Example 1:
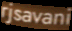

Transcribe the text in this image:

rjsavani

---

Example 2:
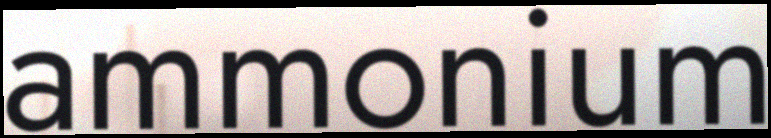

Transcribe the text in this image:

ammonium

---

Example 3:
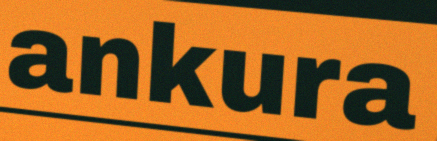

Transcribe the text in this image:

ankura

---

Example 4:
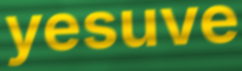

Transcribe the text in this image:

yesuve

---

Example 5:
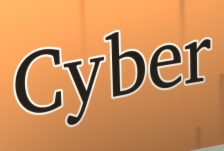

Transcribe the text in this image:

Cyber